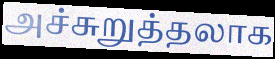
அச்சுறுத்தலாக